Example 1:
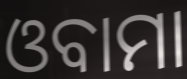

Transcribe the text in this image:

ଓବାମା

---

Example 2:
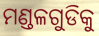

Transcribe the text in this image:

ମଣ୍ଡଳଗୁଡିକୁ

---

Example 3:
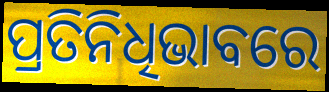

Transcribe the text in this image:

ପ୍ରତିନିଧିଭାବରେ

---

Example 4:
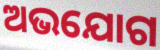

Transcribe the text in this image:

ଅଭଯୋଗ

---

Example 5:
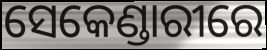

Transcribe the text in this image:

ସେକେଣ୍ଡାରୀରେ